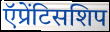
ऍप्रेंटिसशिप